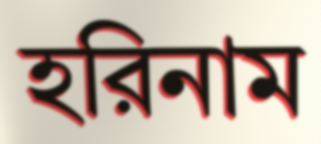
হরিনাম